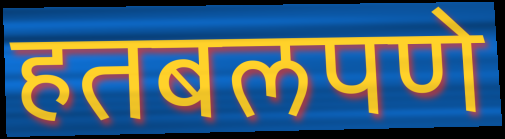
हतबलपणे